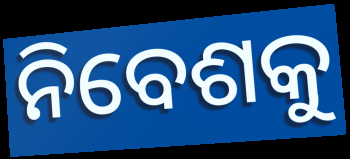
ନିବେଶକୁ